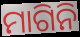
ମାଗିନି